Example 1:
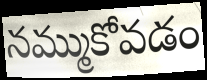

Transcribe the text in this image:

నమ్ముకోవడం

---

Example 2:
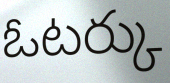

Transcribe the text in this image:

ఓటర్కు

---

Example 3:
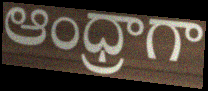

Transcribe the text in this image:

ఆంధ్రాగా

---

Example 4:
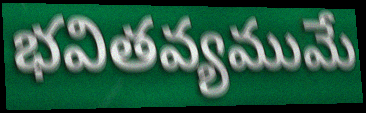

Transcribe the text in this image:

భవితవ్యముమే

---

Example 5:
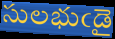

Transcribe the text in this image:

సులభుఁడై